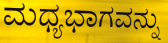
ಮಧ್ಯಭಾಗವನ್ನು